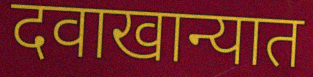
दवाखान्यात